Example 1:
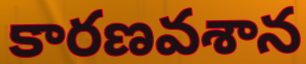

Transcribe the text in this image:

కారణవశాన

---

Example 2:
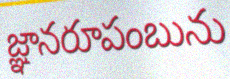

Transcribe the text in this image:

జ్ఞానరూపంబును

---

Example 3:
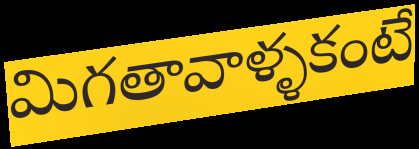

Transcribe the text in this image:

మిగతావాళ్ళకంటే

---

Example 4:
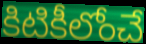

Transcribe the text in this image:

కిటికీలోంచే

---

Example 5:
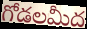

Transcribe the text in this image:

గోడలమీద